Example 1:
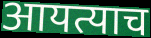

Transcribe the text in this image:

आयत्याच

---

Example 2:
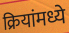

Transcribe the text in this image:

क्रियांमध्ये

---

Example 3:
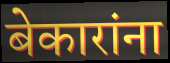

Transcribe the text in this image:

बेकारांना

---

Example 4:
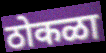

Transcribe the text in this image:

ठोकळा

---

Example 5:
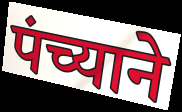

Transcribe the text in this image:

पंच्याने